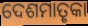
ଦେଶମାତୃକା